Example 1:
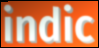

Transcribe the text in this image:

indic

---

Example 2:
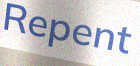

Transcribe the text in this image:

Repent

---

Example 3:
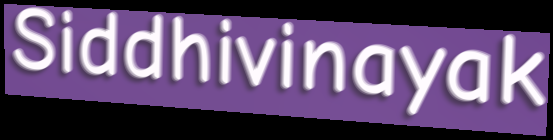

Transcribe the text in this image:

Siddhivinayak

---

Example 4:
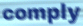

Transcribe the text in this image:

comply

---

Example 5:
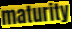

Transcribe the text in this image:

maturity